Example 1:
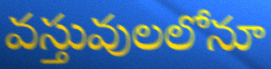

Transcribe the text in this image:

వస్తువులలోనూ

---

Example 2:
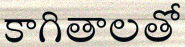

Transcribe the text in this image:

కాగితాలతో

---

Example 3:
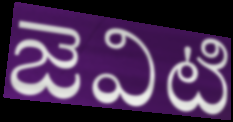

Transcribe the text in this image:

జెవిటి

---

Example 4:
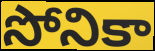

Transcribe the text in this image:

సోనికా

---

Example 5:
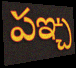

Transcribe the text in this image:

పఞ్చ